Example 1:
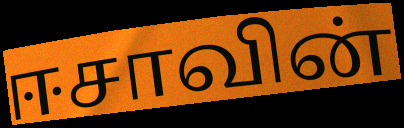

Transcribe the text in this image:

ஈசாவின்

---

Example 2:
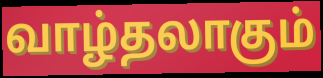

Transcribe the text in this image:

வாழ்தலாகும்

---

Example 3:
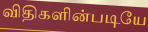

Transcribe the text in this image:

விதிகளின்படியே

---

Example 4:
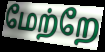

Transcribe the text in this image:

மேற்றே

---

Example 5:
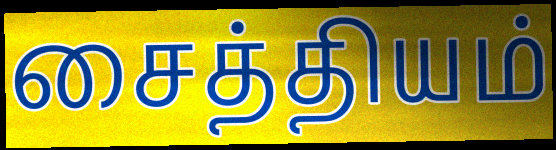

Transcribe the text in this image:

சைத்தியம்